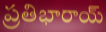
ప్రతిభారాయ్